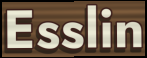
Esslin